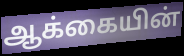
ஆக்கையின்